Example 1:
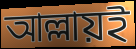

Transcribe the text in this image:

আল্লায়ই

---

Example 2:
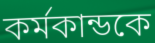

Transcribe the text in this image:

কর্মকান্ডকে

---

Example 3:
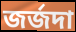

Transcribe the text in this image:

জর্জদা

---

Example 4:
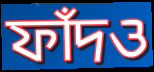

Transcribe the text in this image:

ফাঁদও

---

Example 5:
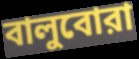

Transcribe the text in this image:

বালুবোরা